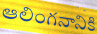
ఆలింగనానికి